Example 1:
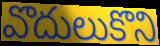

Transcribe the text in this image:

వొదులుకొని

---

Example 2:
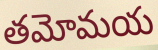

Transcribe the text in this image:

తమోమయ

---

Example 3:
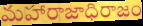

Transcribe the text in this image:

మహారాజాధిరాజం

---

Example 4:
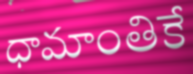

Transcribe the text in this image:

ధామాంతికే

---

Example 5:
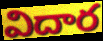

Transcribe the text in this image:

విదార